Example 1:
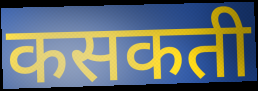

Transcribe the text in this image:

कसकती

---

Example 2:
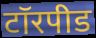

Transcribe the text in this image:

टॉरपीड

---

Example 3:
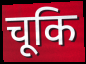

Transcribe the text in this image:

चूकि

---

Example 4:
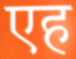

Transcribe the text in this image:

एह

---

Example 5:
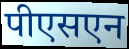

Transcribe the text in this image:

पीएसएन